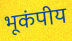
भूकंपीय